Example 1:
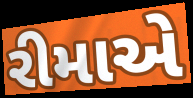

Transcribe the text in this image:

રીમાએ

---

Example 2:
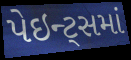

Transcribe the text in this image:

પેઇન્ટ્સમાં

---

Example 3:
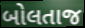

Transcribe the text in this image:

બોલતાજ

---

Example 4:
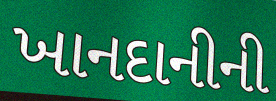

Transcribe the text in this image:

ખાનદાનીની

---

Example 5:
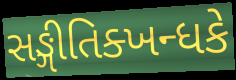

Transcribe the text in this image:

સઙ્ગીતિક્ખન્ધકે